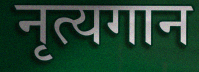
नृत्यगान